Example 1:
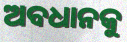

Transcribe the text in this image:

ଅବଧାନକୁ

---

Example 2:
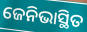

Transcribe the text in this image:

ଜେନିଭାସ୍ଥିତ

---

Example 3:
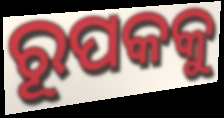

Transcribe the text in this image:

ରୂପକକୁ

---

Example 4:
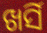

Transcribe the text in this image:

ଖର୍ସି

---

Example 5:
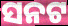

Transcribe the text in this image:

ସନଟ